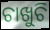
ଚାଖୁଚି